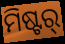
ମିଷ୍ଟର୍